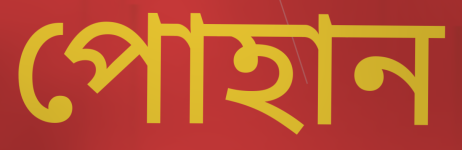
পোহান